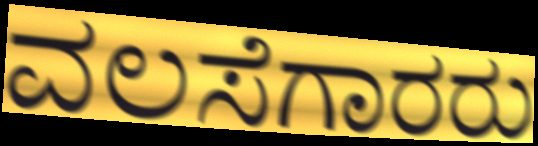
ವಲಸೆಗಾರರು